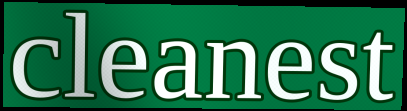
cleanest